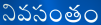
నివసంతం